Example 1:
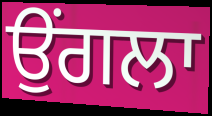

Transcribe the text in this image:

ਉਂਗਲਾ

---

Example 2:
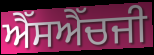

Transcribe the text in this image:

ਐੱਸਐੱਚਜੀ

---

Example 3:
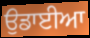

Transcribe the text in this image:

ਉਡਾਈਆ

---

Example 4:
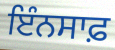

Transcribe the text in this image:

ਇੰਨਸਾਫ਼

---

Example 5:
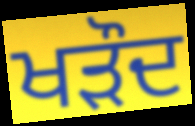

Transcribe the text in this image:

ਖੜੌਦ